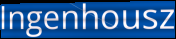
Ingenhousz